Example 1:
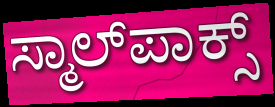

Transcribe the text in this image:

ಸ್ಮಾಲ್‌ಪಾಕ್ಸ್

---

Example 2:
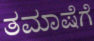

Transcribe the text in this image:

ತಮಾಷೆಗೆ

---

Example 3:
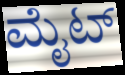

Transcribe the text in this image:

ಮೈಟ್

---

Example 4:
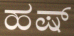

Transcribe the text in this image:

ಹಷ್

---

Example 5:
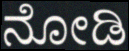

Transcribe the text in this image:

ನೋಡಿ